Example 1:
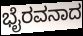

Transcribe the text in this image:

ಭೈರವನಾದ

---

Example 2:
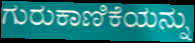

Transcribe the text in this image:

ಗುರುಕಾಣಿಕೆಯನ್ನು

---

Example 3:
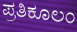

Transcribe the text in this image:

ಪ್ರತಿಕೂಲಂ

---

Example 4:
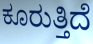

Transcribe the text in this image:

ಕೂರುತ್ತಿದೆ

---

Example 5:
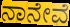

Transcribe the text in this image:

ನಾನೇವೆ